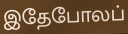
இதேபோலப்